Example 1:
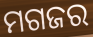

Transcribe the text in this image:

ମଗଜର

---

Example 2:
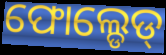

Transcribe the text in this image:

ଫୋଲ୍ଡେଡ୍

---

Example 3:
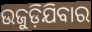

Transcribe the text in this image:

ଉଜୁଡ଼ିଯିବାର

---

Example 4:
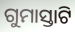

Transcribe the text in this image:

ଗୁମାସ୍ତାଟି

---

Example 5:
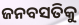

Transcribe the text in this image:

ଜନବସତିକୁ